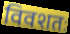
विवशतः